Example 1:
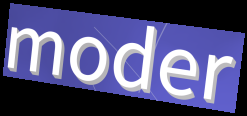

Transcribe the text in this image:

moder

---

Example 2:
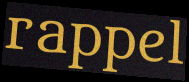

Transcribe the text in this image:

rappel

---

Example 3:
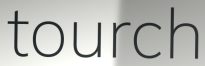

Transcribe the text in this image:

tourch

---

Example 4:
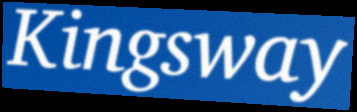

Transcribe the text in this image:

Kingsway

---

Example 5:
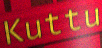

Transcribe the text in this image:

Kuttu